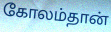
கோலம்தான்